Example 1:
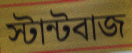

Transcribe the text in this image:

স্টান্টবাজ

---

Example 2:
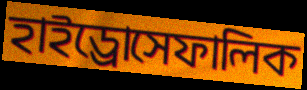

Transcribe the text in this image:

হাইড্রোসেফালিক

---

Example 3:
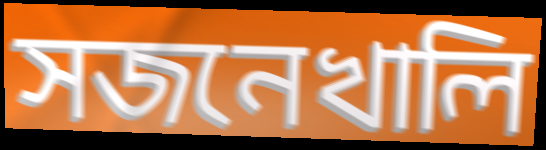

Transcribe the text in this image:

সজনেখালি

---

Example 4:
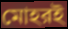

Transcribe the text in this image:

মোহরই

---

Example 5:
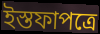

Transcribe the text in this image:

ইস্তফাপত্রে